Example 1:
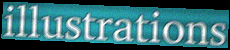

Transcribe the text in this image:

illustrations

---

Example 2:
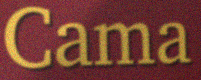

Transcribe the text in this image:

Cama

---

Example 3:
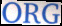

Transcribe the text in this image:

ORG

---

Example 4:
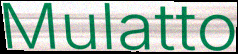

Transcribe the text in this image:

Mulatto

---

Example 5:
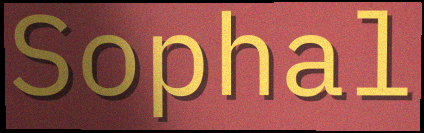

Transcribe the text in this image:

Sophal